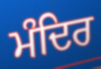
ਮੰਦਿਰ